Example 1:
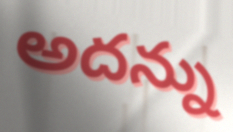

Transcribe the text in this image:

అదన్ను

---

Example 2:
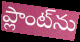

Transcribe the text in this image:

ప్లాంట్‌ను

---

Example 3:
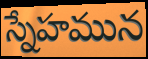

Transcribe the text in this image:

స్నేహమున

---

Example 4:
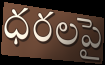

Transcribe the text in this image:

ధరలపై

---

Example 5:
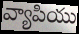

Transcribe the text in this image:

వ్యాపియు